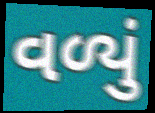
વળ્યું